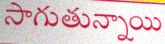
సాగుతున్నాయి